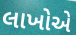
લાખોએ